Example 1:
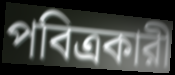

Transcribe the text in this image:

পবিত্রকারী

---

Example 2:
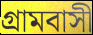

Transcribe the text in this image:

গ্রামবাসী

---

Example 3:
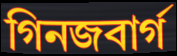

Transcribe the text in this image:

গিনজবার্গ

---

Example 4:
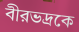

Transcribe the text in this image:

বীরভদ্রকে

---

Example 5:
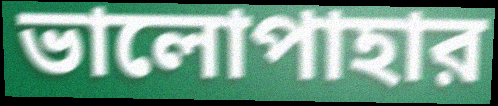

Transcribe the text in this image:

ভালোপাহার